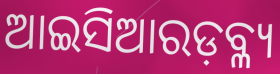
ଆଇସିଆରଡ଼ବ୍ଳ୍ୟ